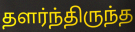
தளர்ந்திருந்த